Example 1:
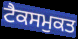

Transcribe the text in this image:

ਟੈਕਸਮੁਕਤ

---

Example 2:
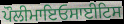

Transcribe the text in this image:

ਪੌਲੀਮਾਇਓਸਾਈਟਿਸ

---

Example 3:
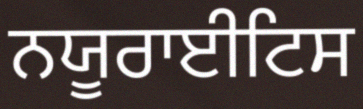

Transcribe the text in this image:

ਨਯੂਰਾਈਟਿਸ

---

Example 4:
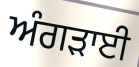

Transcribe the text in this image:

ਅੰਗੜਾਈ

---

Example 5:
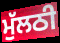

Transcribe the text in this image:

ਮੁੱਲਠੀ